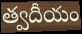
త్వదీయం